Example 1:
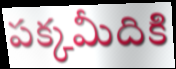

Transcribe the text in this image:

పక్కమీదికి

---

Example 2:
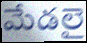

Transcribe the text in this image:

మేడలై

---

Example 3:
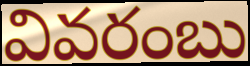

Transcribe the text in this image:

వివరంబు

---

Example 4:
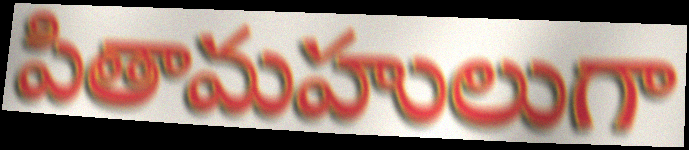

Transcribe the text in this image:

పితామహులుగా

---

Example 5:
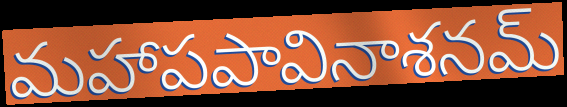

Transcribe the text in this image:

మహాపపావినాశనమ్